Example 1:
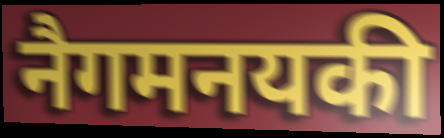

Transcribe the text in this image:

नैगमनयकी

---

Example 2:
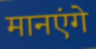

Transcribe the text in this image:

मानएंगे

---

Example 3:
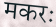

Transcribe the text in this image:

मकरः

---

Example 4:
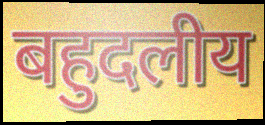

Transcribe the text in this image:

बहुदलीय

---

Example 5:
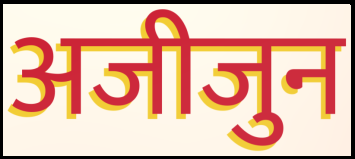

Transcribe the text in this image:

अजीजुन